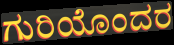
ಗುರಿಯೊಂದರ